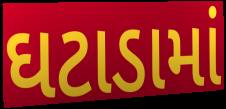
ઘટાડામાં